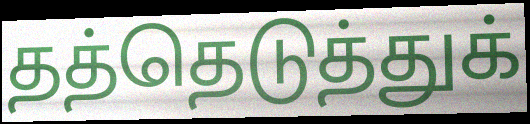
தத்தெடுத்துக்